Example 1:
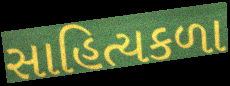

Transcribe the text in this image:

સાહિત્યકળા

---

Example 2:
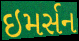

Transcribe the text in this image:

ઇમર્સન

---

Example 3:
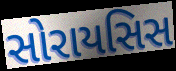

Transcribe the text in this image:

સોરાયસિસ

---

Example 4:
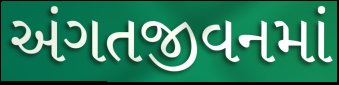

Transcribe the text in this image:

અંગતજીવનમાં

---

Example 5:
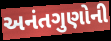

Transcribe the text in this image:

અનંતગુણોની